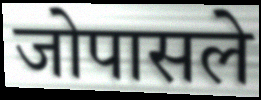
जोपासले